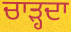
ਚਾੜ੍ਹਦਾ